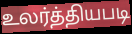
உலர்த்தியபடி